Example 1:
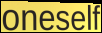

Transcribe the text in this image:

oneself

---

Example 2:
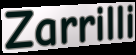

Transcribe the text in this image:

Zarrilli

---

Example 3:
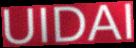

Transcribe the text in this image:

UIDAI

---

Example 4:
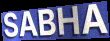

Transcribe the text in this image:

SABHA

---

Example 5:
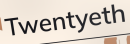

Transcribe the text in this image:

Twentyeth